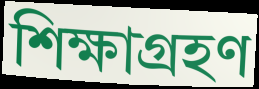
শিক্ষাগ্রহণ